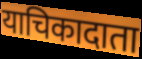
याचिकादाता